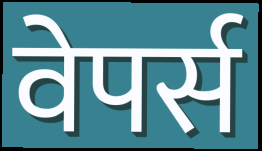
वेपर्स